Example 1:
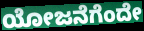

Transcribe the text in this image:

ಯೋಜನೆಗೆಂದೇ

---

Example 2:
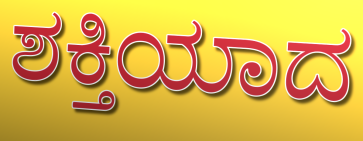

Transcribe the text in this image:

ಶಕ್ತಿಯಾದ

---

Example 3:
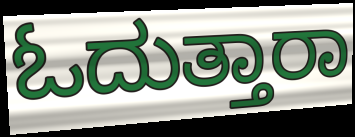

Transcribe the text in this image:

ಓದುತ್ತಾರಾ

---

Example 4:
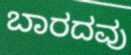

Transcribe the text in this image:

ಬಾರದವು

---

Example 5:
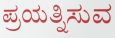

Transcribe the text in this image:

ಪ್ರಯತ್ನಿಸುವ